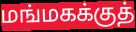
மங்மகக்குத்